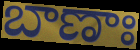
బాణాః